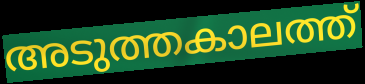
അടുത്തകാലത്ത്